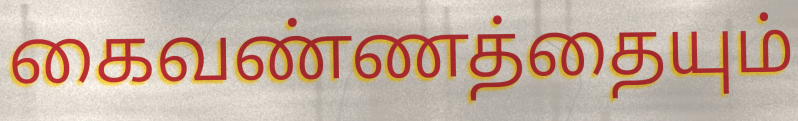
கைவண்ணத்தையும்